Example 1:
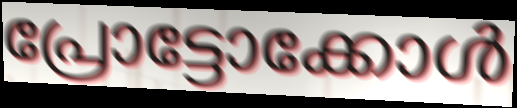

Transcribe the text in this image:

പ്രോട്ടോക്കോൾ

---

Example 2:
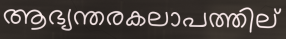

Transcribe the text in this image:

ആഭ്യന്തരകലാപത്തില്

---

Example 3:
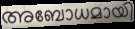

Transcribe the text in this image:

അബോധമായി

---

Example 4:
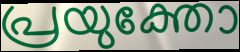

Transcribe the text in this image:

പ്രയുക്തോ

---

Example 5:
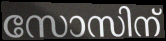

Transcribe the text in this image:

സോസിന്